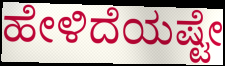
ಹೇಳಿದೆಯಷ್ಟೇ